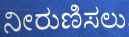
ನೀರುಣಿಸಲು